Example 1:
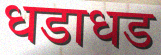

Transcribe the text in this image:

धडाधड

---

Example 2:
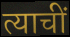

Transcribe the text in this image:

त्याचीं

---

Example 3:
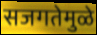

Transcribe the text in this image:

सजगतेमुळे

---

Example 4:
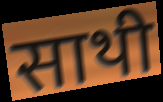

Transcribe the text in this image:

साथी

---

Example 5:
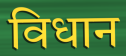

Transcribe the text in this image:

विधान